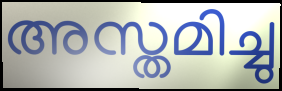
അസ്തമിച്ചു